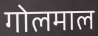
गोलमाल